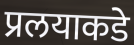
प्रलयाकडे